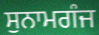
ਸੁਨਾਮਗੰਜ